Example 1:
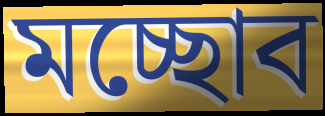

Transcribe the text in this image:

মচ্ছোব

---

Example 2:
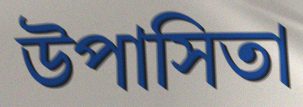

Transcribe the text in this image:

উপাসিতা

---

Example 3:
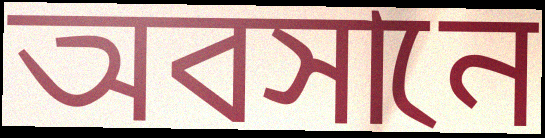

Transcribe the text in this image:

অবসানে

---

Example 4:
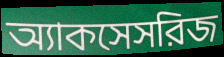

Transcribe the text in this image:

অ্যাকসেসরিজ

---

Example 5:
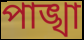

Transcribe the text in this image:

পাঙ্খা